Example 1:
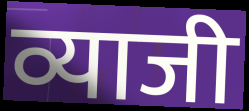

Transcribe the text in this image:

व्याजी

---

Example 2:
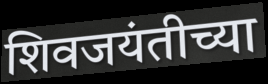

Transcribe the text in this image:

शिवजयंतीच्या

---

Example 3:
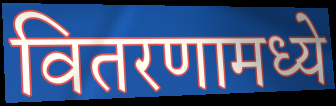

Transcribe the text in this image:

वितरणामध्ये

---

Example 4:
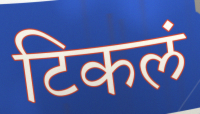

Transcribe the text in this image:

टिकलं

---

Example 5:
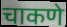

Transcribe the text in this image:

चाकणे